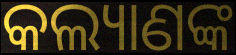
କଲ୍ୟାଣଙ୍କ